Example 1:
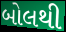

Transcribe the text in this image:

બોલથી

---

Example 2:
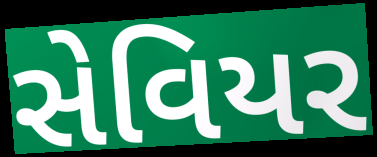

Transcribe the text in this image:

સેવિયર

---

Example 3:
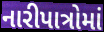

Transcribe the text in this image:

નારીપાત્રોમાં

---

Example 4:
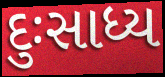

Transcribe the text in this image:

દુઃસાધ્ય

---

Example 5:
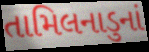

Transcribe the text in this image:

તામિલનાડુનાં